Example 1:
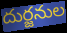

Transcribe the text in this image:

దుర్జనుల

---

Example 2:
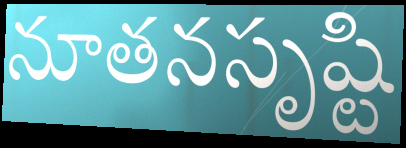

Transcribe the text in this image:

నూతనసృష్టి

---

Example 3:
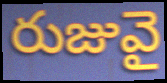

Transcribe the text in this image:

రుజువై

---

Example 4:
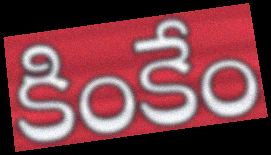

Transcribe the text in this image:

కింకేం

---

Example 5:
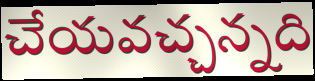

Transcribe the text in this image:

చేయవచ్చన్నది